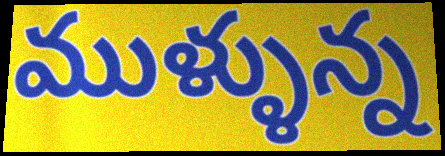
ముళ్ళున్న